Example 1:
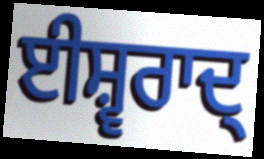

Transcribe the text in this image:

ਈਸ਼੍ਵਰਾਦ੍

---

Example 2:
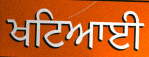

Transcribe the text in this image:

ਖਟਿਆਈ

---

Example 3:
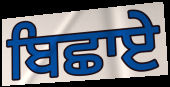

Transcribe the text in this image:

ਬਿਛਾਏ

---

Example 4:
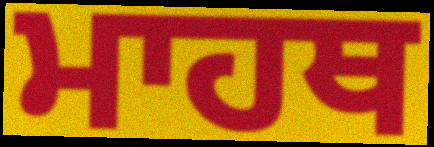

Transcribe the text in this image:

ਮਾਹਥ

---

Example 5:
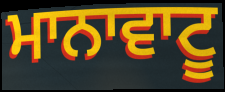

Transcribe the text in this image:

ਮਾਨਾਵਾਟੂ